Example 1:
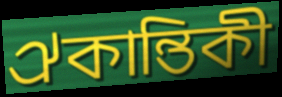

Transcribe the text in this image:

ঐকান্তিকী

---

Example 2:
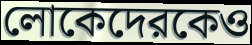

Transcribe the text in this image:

লোকেদেরকেও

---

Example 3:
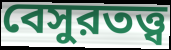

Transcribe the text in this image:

বেসুরতত্ত্ব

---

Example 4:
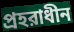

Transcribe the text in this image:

প্রহরাধীন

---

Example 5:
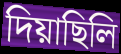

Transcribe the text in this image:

দিয়াছিলি